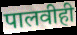
पालवीही